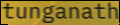
tunganath